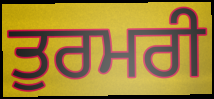
ਤੁਰਮਰੀ